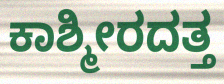
ಕಾಶ್ಮೀರದತ್ತ